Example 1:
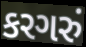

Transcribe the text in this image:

કરગરું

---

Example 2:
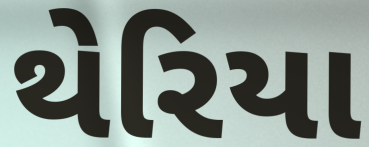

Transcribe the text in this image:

થેરિયા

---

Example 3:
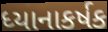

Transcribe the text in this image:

ધ્યાનાકર્ષક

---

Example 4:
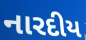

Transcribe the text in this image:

નારદીય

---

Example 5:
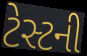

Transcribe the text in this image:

ટેસ્ટની